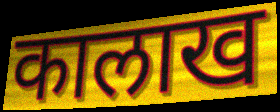
कालाख